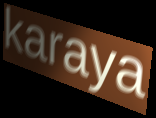
karaya